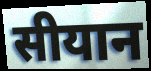
सीयान